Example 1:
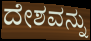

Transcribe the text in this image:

ದೇಶವನ್ನು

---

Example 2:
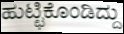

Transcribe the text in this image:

ಹುಟ್ಟಿಕೊಂಡಿದ್ದು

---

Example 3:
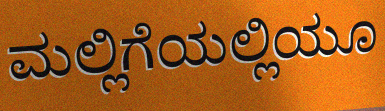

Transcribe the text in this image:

ಮಲ್ಲಿಗೆಯಲ್ಲಿಯೂ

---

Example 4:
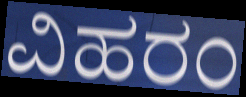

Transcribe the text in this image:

ವಿಹರಂ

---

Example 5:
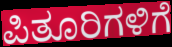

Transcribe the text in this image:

ಪಿತೂರಿಗಳಿಗೆ